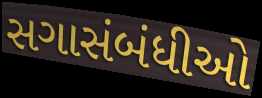
સગાસંબંધીઓ